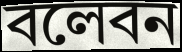
বলেবন